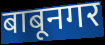
बाबूनगर